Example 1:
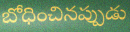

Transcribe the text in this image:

బోధించినప్పుడు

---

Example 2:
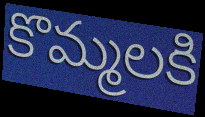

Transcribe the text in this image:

కొమ్మలకి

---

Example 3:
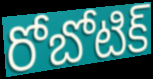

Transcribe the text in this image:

రోబోటిక్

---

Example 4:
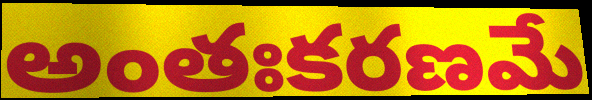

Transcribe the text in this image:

అంతఃకరణమే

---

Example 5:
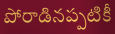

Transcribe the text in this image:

పోరాడినప్పటికీ